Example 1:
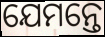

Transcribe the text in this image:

ଯେମନ୍ତେ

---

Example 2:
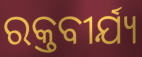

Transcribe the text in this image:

ରକ୍ତବୀର୍ଯ୍ୟ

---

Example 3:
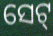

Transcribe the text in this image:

ସେଟ୍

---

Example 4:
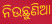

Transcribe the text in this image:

ନିଉଛୁଣିଆ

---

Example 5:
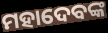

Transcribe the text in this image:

ମହାଦେବଙ୍କ